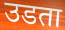
उडता